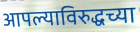
आपल्याविरुद्धच्या